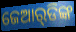
ଜେଆର୍‌ଡିଙ୍କ